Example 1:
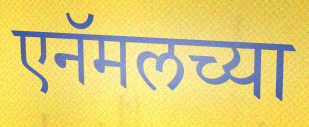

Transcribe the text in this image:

एनॅमलच्या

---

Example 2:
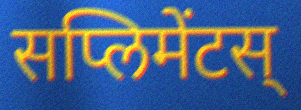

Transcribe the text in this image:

सप्लिमेंटस्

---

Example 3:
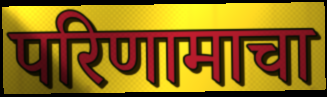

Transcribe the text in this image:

परिणामाचा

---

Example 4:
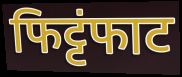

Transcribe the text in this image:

फिट्टंफाट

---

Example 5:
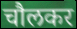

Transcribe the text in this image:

चौलकर